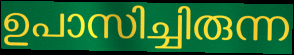
ഉപാസിച്ചിരുന്ന